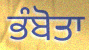
ਭੰਬੋਤਾ